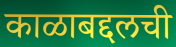
काळाबद्दलची